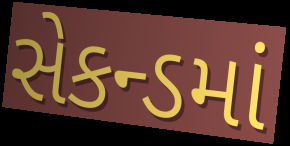
સેકન્ડમાં